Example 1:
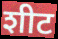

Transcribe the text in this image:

शीट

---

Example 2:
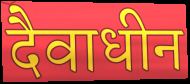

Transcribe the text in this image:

दैवाधीन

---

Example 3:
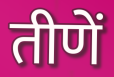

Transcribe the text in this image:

तीणें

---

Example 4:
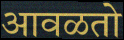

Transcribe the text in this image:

आवळतो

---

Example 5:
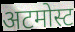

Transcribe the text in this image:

अटमोस्ट